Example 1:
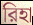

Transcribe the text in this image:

রিহা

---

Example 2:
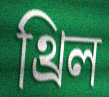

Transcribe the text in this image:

থ্রিল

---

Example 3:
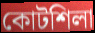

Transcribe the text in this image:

কোটশিলা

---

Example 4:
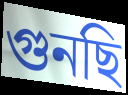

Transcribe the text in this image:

গুনছি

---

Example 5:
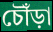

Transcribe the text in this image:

চৌঁড়া